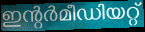
ഇന്റർമീഡിയറ്റ്